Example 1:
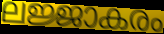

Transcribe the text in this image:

ലജ്ജാകരം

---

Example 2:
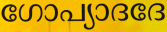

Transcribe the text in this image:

ഗോപ്യാദദേ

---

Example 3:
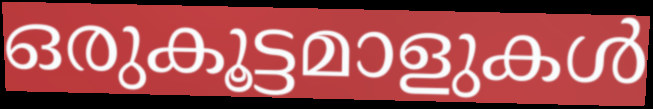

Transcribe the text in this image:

ഒരുകൂട്ടമാളുകൾ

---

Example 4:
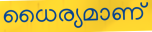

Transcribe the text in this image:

ധൈര്യമാണ്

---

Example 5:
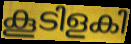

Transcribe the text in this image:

കൂടിളകി